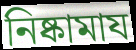
নিষ্কামায